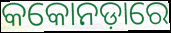
କକୋନଡ଼ାରେ